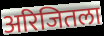
अरिजितला